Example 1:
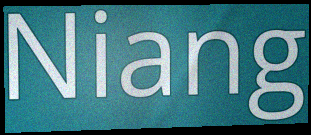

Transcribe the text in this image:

Niang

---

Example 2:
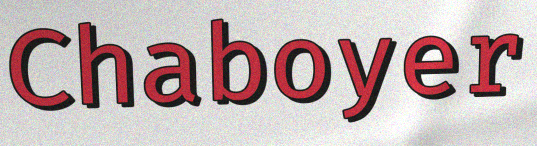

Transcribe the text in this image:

Chaboyer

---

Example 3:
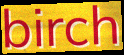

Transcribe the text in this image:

birch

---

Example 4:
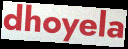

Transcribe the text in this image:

dhoyela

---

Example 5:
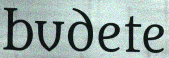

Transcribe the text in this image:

budete